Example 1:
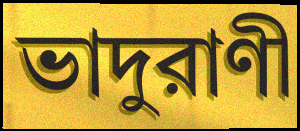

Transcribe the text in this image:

ভাদুরাণী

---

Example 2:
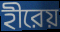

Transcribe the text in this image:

হীরেয়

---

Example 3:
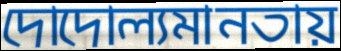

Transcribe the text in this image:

দোদোল্যমানতায়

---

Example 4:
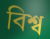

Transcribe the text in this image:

বিশ্ব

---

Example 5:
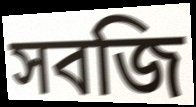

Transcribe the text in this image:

সবজি